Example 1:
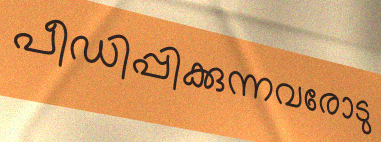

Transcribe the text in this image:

പീഡിപ്പിക്കുന്നവരോടു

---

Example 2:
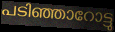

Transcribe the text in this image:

പടിഞ്ഞാറോട്ടു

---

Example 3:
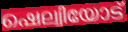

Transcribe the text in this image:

ഷെല്വിയോട്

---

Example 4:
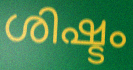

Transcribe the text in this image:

ശിഷ്ടം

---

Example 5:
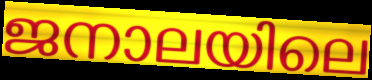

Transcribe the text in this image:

ജനാലയിലെ